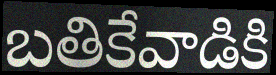
బతికేవాడికి